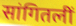
सांगितलीं